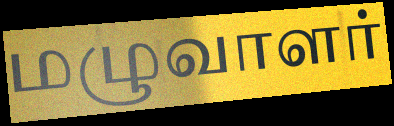
மழுவாளர்